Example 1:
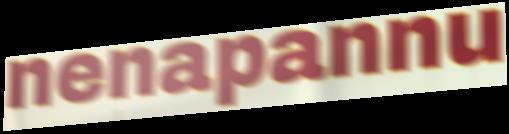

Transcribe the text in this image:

nenapannu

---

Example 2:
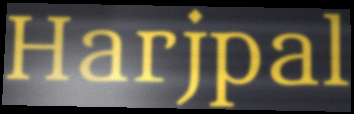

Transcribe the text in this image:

Harjpal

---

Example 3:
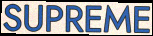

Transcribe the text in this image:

SUPREME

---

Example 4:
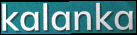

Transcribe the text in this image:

kalanka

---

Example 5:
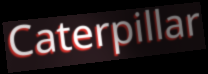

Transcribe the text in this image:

Caterpillar